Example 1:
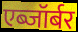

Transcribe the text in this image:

एब्जॉर्बर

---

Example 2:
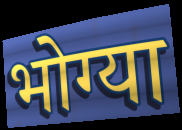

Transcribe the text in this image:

भोग्या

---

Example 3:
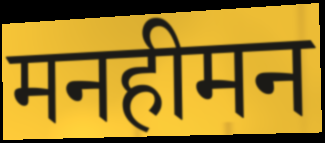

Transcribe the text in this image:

मनहीमन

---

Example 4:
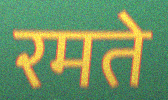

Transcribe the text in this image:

रमते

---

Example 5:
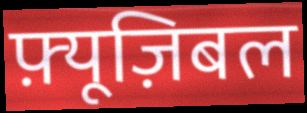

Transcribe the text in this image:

फ़्यूज़िबल